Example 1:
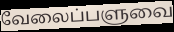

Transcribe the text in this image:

வேலைப்பளுவை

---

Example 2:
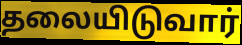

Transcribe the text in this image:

தலையிடுவார்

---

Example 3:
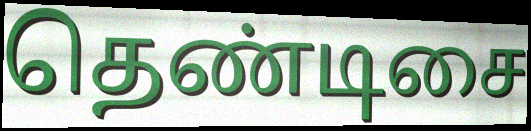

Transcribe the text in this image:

தெண்டிசை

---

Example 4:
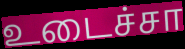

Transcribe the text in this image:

உடைச்சா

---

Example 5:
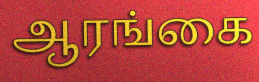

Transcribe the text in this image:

ஆரங்கை